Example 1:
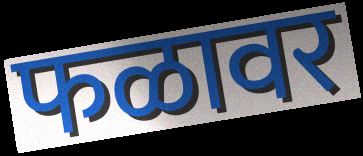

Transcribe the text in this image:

फळावर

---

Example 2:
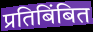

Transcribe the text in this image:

प्रतिबिंबित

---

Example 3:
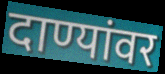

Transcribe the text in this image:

दाण्यांवर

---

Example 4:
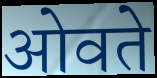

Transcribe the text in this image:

ओवते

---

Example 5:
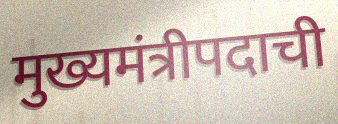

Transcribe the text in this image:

मुख्यमंत्रीपदाची